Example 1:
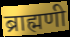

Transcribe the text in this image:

ब्राह्मणी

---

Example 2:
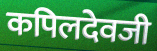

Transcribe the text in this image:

कपिलदेवजी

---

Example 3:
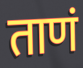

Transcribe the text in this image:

ताणं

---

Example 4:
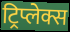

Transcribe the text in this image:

ट्रिप्लेक्स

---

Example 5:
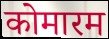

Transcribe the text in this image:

कोमारम